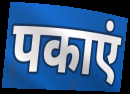
पकाएं